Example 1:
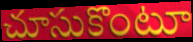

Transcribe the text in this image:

చూసుకొంటూ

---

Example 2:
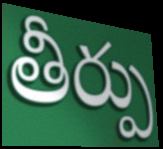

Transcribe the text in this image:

తీర్పు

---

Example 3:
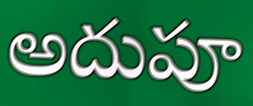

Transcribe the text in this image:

అదుపూ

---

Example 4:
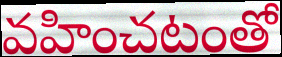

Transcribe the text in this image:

వహించటంతో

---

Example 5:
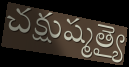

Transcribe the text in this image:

చక్షుష్మత్యై